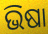
ଭିଷା